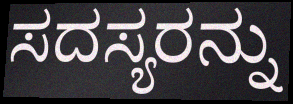
ಸದಸ್ಯರನ್ನು